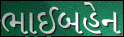
ભાઈબહેન